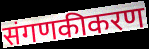
संगणकीकरण